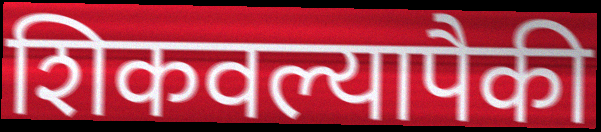
शिकवल्यापैकी